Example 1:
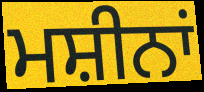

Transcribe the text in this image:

ਮਸ਼ੀਨਾਂ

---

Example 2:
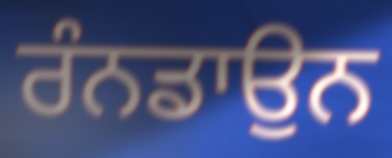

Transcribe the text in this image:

ਰੰਨਡਾਉਨ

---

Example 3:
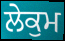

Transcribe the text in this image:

ਲੇਕੁਮ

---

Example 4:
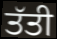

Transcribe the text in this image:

ਤੱਤੀ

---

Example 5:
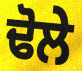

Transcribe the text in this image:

ਢੋਲੇ